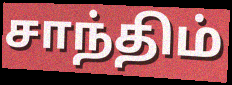
சாந்திம்